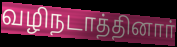
வழிநடாத்தினார்